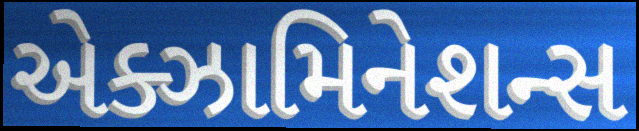
એક્ઝામિનેશન્સ